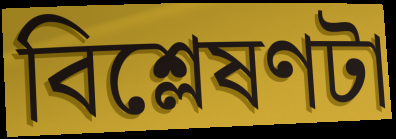
বিশ্লেষণটা